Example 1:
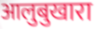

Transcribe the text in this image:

आलुबुखारा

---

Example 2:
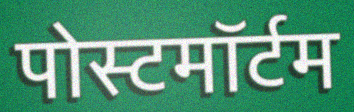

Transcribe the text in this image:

पोस्टमॉर्टम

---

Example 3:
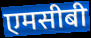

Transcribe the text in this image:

एमसीबी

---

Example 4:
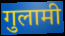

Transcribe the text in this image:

गुलामी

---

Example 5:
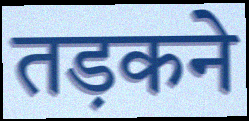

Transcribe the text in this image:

तड़कने